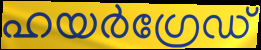
ഹയർഗ്രേഡ്